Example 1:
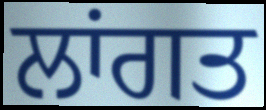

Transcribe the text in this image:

ਲਾਂਗਤ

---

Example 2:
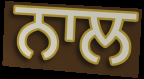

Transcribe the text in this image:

ਨਾਲ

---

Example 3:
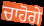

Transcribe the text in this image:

ਚਾਹੋਗੇ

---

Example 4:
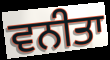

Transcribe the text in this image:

ਵਨੀਤਾ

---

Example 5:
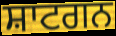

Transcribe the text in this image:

ਸ਼ਾਟਗਨ